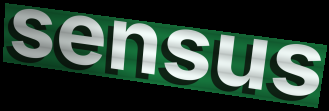
sensus